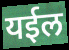
यईल